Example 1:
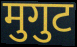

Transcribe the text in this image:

मुगुट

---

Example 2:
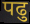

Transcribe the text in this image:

पढु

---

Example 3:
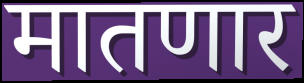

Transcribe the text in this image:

मातणार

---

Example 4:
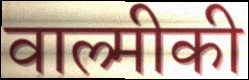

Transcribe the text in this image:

वाल्मीकी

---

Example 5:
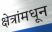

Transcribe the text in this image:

क्षेत्रांमधून